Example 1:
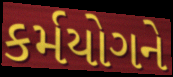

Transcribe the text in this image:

કર્મયોગને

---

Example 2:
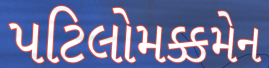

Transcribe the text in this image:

પટિલોમક્કમેન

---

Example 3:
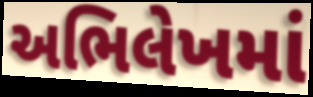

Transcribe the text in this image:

અભિલેખમાં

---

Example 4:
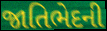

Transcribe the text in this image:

જાતિભેદની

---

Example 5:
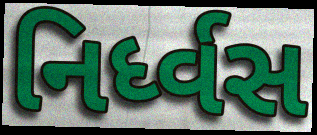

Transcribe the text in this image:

નિર્ધ્વસ